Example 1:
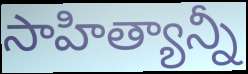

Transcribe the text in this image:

సాహిత్యాన్నీ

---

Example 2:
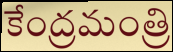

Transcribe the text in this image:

కేంద్రమంత్రి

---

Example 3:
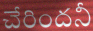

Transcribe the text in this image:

చేరిందనీ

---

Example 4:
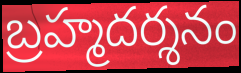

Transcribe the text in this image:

బ్రహ్మదర్శనం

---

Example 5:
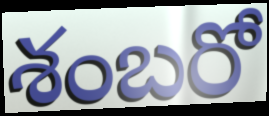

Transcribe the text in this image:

శంబరో